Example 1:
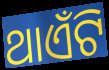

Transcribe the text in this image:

ଥାଏଁଟି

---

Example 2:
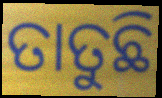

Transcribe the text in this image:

ତାତୁଛି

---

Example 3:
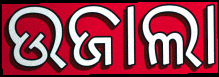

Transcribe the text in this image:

ଉଜାଲା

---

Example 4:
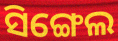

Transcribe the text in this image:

ସିଙ୍ଗେଲ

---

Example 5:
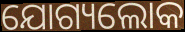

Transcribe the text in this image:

ଯୋଗ୍ୟଲୋକ